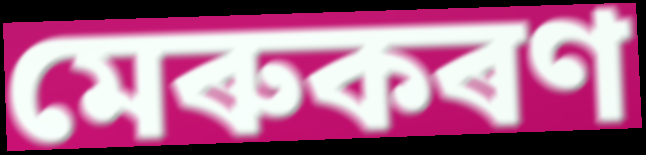
মেৰুকৰণ